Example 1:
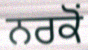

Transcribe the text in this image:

ਨਰਕੋਂ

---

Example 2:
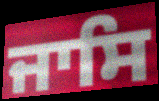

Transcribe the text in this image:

ਜਾਸਿ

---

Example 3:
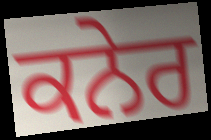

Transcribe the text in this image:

ਕਨੇਰ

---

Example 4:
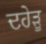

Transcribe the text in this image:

ਦਹੇੜੂ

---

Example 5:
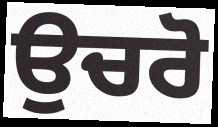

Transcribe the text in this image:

ਉਚਰੋ